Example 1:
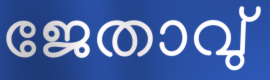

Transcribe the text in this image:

ജേതാവു്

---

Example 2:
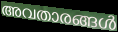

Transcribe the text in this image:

അവതാരങ്ങൾ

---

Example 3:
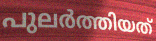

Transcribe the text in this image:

പുലർത്തിയത്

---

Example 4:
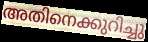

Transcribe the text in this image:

അതിനെക്കുറിച്ചു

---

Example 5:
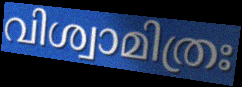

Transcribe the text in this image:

വിശ്വാമിത്രഃ